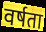
वर्षता